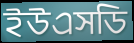
ইউএসডি